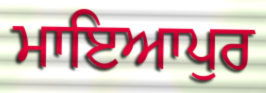
ਮਾਇਆਪੁਰ